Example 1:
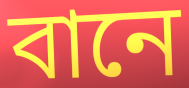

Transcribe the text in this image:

বানে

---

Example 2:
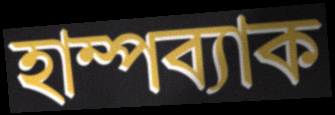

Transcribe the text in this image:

হাম্পব্যাক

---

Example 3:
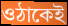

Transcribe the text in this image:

ওঠাকেই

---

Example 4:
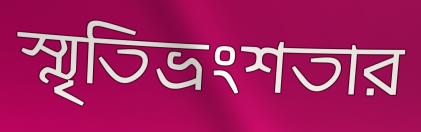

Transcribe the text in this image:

স্মৃতিভ্রংশতার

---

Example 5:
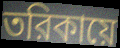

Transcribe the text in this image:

তরিকায়ে